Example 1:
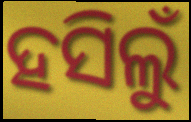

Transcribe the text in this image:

ହସିଲୁଁ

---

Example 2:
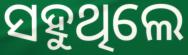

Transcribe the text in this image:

ସହୁଥିଲେ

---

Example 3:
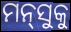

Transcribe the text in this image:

ମନ୍‌ସୁକୁ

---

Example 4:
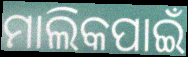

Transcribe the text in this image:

ମାଲିକପାଇଁ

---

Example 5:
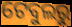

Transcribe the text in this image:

ଟେବୁଲରୁ